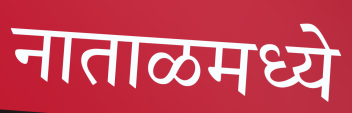
नाताळमध्ये